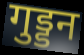
गुड्डन